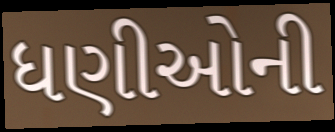
ધણીઓની